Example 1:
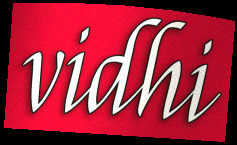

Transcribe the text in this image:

vidhi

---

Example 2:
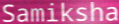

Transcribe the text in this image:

Samiksha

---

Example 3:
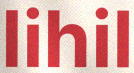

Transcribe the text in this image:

lihil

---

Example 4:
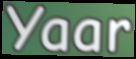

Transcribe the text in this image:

Yaar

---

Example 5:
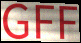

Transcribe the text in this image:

GFF